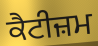
ਕੈਟੀਜ਼ਮ